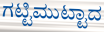
ಗಟ್ಟಿಮುಟ್ಟಾದ